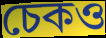
চেকও